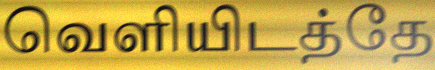
வெளியிடத்தே